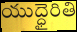
యుద్ధైరితి